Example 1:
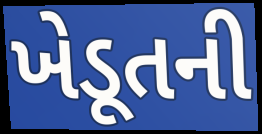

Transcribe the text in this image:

ખેડૂતની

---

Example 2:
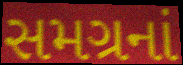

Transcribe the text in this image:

સમગ્રનાં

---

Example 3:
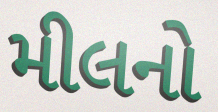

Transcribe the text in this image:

મીલનો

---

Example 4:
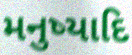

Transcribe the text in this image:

મનુષ્યાદિ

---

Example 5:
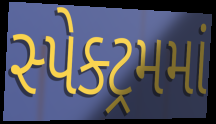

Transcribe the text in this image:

સ્પેક્ટ્રમમાં